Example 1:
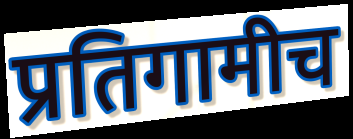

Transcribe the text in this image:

प्रतिगामीच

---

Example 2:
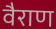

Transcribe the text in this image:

वैराण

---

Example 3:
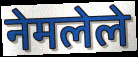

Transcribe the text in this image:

नेमलेले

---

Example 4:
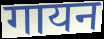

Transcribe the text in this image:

गायन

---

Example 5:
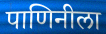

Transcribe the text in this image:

पाणिनीला